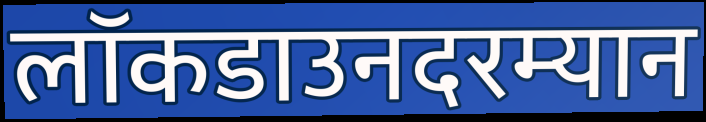
लॉकडाउनदरम्यान